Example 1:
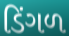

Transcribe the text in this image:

ડિંગળ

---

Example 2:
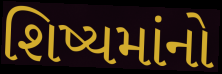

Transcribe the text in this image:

શિષ્યમાંનો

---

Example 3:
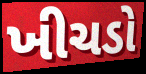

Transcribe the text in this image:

ખીચડો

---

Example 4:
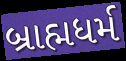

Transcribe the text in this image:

બ્રાહ્મધર્મ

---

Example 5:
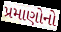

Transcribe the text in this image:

પ્રમાણોનો